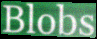
Blobs